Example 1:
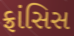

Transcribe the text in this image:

ફ્રાંસિસ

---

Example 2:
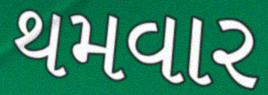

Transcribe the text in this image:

થમવાર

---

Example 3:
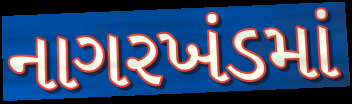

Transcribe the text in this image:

નાગરખંડમાં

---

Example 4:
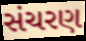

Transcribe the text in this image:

સંચરણ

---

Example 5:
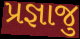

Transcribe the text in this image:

પ્રજ્ઞાજુ